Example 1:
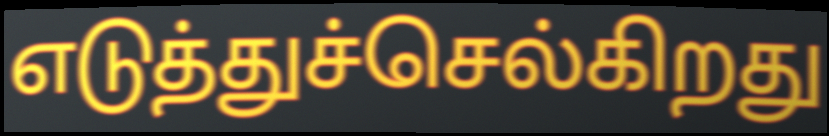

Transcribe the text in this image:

எடுத்துச்செல்கிறது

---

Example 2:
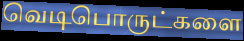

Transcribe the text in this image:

வெடிபொருட்களை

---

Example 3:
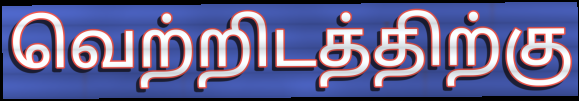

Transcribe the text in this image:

வெற்றிடத்திற்கு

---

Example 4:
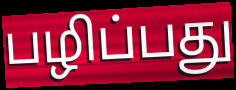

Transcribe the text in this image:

பழிப்பது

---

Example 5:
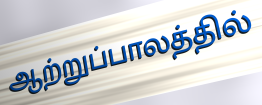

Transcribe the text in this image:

ஆற்றுப்பாலத்தில்